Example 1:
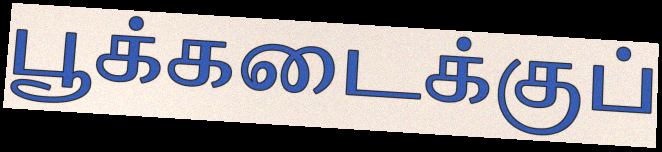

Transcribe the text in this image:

பூக்கடைக்குப்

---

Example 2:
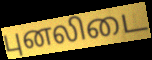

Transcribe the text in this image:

புனலிடை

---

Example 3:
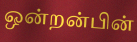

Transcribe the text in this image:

ஒன்றன்பின்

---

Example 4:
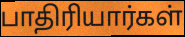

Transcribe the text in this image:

பாதிரியார்கள்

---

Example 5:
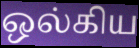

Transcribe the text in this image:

ஒல்கிய